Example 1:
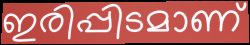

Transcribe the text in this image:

ഇരിപ്പിടമാണ്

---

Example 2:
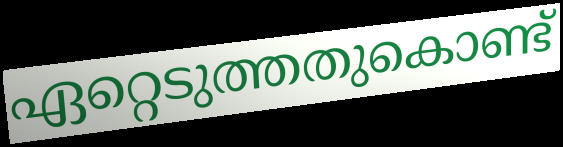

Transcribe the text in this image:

ഏറ്റെടുത്തതുകൊണ്ട്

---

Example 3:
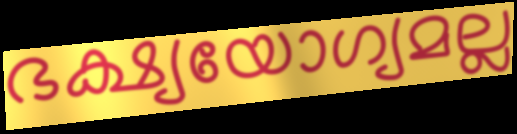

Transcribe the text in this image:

ഭക്ഷ്യയോഗ്യമല്ല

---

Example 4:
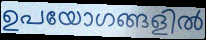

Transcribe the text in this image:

ഉപയോഗങ്ങളിൽ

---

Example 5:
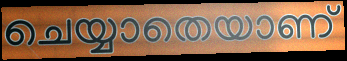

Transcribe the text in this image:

ചെയ്യാതെയാണ്